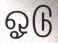
ஓடு